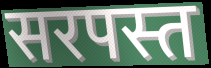
सरपस्त